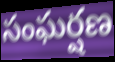
సంఘర్షణ